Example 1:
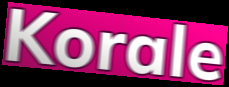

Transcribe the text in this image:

Korale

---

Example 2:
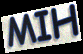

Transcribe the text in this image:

MIH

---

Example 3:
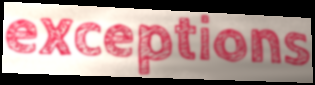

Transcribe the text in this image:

exceptions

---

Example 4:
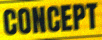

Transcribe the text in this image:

CONCEPT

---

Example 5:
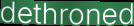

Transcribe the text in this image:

dethroned